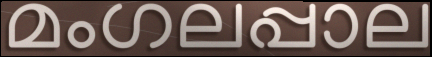
മംഗലപ്പാല